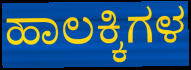
ಹಾಲಕ್ಕಿಗಳ